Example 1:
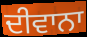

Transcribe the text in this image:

ਦੀਵਾਨਾ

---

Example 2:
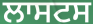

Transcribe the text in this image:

ਲਾਸਟਸ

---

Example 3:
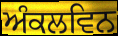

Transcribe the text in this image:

ਅੰਕਲਵਿਨ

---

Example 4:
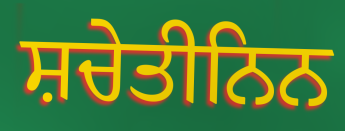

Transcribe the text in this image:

ਸ਼ਚੇਤੀਨਿਨ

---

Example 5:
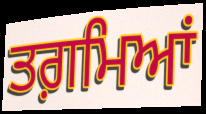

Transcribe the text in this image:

ਤਗ਼ਮਿਆਂ